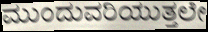
ಮುಂದುವರಿಯುತ್ತಲೇ